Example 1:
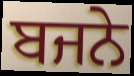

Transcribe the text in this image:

ਬਜਨੇ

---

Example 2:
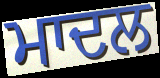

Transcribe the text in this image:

ਮਾਦਲ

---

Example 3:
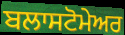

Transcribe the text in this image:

ਬਲਾਸਟੋਮੇਅਰ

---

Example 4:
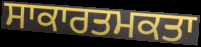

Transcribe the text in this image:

ਸਾਕਾਰਤਮਕਤਾ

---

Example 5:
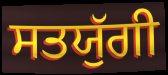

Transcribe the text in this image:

ਸਤਯੁੱਗੀ